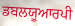
ਡਬਲਯੂਆਰਪੀ